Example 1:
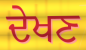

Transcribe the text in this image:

ਦੇਖਣ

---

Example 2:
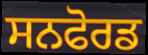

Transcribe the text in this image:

ਸਨਫੋਰਡ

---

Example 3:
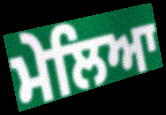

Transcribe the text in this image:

ਮੇਲਿਆ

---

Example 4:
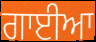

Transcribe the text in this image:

ਗਾਈਆ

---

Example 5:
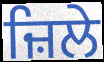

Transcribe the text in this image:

ਜ਼ਿਲੇ